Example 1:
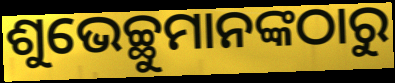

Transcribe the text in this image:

ଶୁଭେଚ୍ଛୁମାନଙ୍କଠାରୁ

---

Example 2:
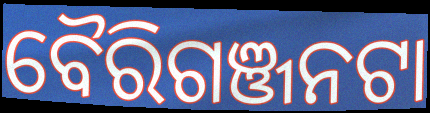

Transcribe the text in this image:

ବୈରିଗଞ୍ଜନଟା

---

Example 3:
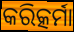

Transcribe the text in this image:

କରିତ୍କର୍ମା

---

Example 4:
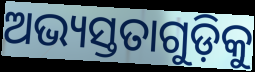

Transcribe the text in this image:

ଅଭ୍ୟସ୍ତତାଗୁଡ଼ିକୁ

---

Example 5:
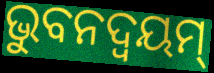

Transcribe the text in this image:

ଭୁବନଦ୍ଵୟମ୍